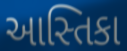
આસ્તિકા